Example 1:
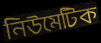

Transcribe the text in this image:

নিউমেটিক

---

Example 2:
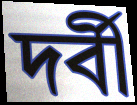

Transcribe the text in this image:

দর্বী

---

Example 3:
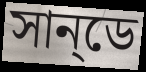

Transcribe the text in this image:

সান্‌ডে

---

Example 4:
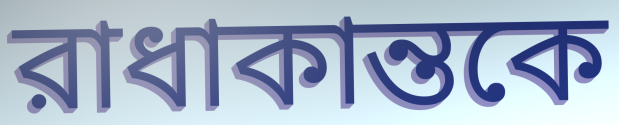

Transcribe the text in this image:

রাধাকান্তকে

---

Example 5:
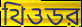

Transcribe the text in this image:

থিওডর